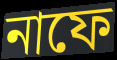
নাফে